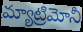
మ్యాట్రిమోనీ